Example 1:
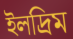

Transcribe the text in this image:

ইলদ্রিম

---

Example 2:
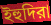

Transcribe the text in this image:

ইহুদিরা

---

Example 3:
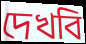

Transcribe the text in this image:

দেখবি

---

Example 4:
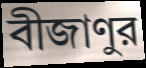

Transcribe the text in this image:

বীজাণুর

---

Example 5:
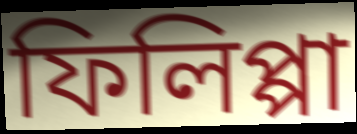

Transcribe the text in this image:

ফিলিপ্পা